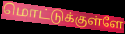
மொட்டுக்குள்ளே